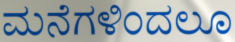
ಮನೆಗಳಿಂದಲೂ